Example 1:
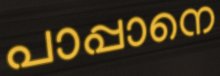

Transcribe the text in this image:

പാപ്പാനെ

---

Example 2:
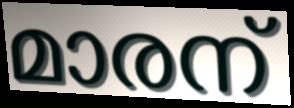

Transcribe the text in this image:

മാരന്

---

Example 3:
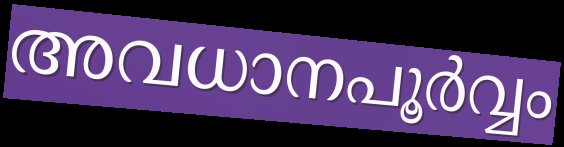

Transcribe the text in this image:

അവധാനപൂർവ്വം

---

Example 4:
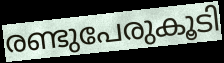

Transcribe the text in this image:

രണ്ടുപേരുകൂടി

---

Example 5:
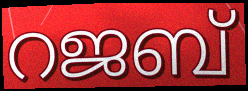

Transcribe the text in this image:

റജബ്